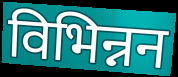
विभिन्नन